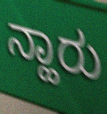
ನ್ಹಾರು